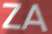
ZA